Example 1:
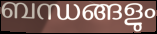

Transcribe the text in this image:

ബന്ധങ്ങളും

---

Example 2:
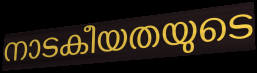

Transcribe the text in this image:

നാടകീയതയുടെ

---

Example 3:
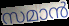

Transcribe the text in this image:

സമാൻ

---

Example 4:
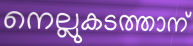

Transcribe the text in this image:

നെല്ലുകടത്താന്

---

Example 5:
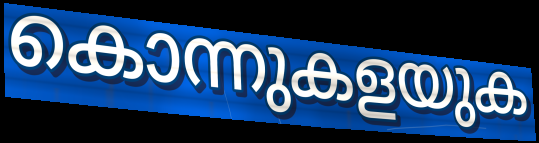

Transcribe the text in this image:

കൊന്നുകളയുക